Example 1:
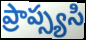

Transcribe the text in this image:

ప్రాప్స్యసి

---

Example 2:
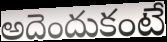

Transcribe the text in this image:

అదెందుకంటే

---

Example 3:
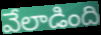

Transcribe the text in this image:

వేలాడింది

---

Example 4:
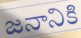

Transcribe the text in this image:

జనానికి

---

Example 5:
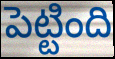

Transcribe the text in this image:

పెట్టింది